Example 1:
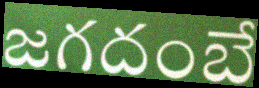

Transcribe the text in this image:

జగదంబే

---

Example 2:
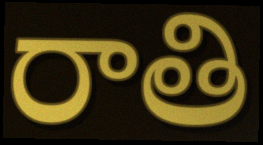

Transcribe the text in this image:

రాతి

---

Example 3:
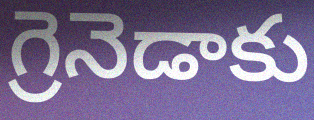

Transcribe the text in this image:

గ్రెనెడాకు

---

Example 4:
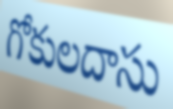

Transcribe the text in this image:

గోకులదాసు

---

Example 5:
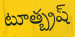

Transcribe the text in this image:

టూత్బ్రష్